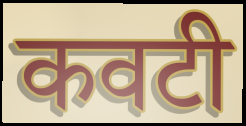
कवटी